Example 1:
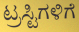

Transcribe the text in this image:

ಟ್ರಸ್ಟಿಗಳಿಗೆ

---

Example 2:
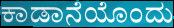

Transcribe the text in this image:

ಕಾಡಾನೆಯೊಂದು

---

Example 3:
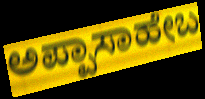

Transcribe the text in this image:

ಅಪ್ಪಾಸಾಹೇಬ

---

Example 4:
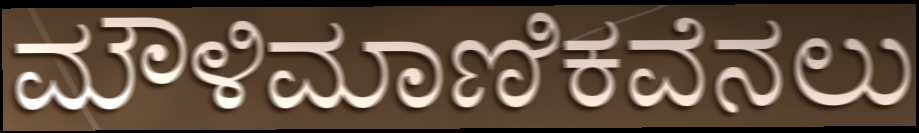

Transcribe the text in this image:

ಮೌಳಿಮಾಣಿಕವೆನಲು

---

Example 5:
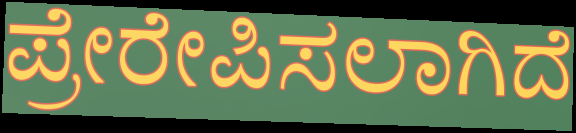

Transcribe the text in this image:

ಪ್ರೇರೇಪಿಸಲಾಗಿದೆ